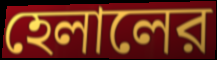
হেলালের